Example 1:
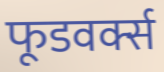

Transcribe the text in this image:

फूडवर्क्स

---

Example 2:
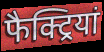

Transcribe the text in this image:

फैक्ट्रियां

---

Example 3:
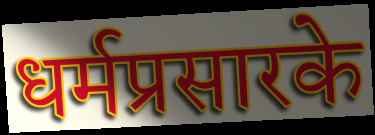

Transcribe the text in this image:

धर्मप्रसारके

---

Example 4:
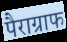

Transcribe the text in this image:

पैराग्राफ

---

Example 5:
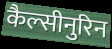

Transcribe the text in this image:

कैल्सीनुरिन